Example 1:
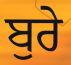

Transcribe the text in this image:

ਬੁਰੇ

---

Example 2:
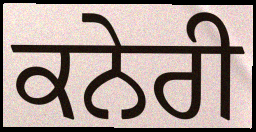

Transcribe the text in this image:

ਕਨੇਰੀ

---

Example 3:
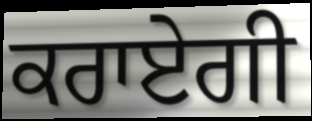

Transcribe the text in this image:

ਕਰਾਏਗੀ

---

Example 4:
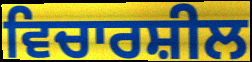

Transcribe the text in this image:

ਵਿਚਾਰਸ਼ੀਲ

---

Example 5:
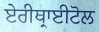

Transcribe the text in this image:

ਏਰੀਥ੍ਰਾਈਟੋਲ